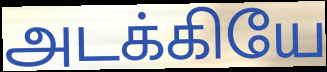
அடக்கியே